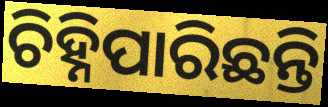
ଚିହ୍ନିପାରିଛନ୍ତି